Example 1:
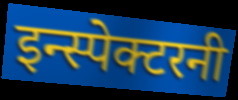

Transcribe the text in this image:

इन्स्पेक्टरनी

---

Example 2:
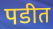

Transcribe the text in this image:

पडीत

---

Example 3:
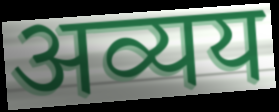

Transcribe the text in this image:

अव्यय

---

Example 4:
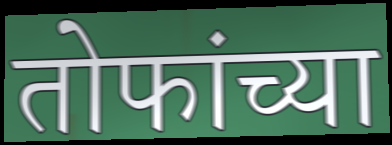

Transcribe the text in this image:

तोफांच्या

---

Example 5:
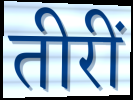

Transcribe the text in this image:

तीरीं